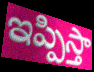
ఇప్పిస్తా